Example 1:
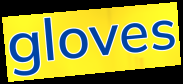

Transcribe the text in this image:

gloves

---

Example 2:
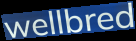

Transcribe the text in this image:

wellbred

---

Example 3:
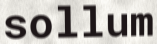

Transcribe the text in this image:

sollum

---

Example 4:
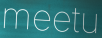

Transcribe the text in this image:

meetu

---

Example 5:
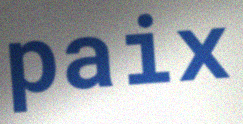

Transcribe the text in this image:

paix